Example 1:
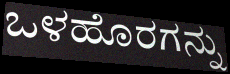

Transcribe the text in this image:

ಒಳಹೊರಗನ್ನು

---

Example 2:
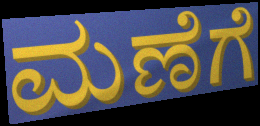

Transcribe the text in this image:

ಮಣೆಗೆ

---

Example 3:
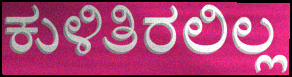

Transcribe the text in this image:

ಕುಳಿತಿರಲಿಲ್ಲ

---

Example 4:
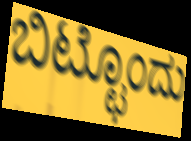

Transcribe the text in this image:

ಬಿಟ್ಟೊಂದು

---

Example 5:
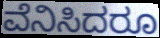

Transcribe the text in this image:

ವೆನಿಸಿದರೂ